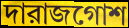
দারাজগোশ